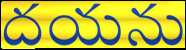
దయను